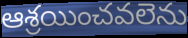
ఆశ్రయించవలెను